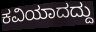
ಕವಿಯಾದದ್ದು